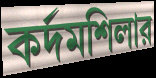
কর্দমশিলার